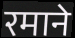
रमाने